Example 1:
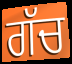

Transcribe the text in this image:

ਗੱਚ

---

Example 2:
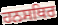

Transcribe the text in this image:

ਹਨਸਥਿਰ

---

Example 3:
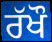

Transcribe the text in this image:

ਰੱਖੌ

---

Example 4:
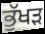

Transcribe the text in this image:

ਭੁੱਖੜ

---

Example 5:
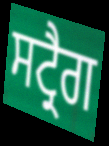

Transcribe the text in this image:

ਸਟ੍ਰੈਗ